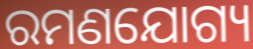
ରମଣଯୋଗ୍ୟ